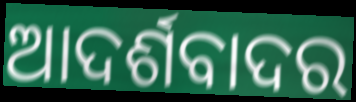
ଆଦର୍ଶବାଦର